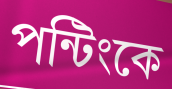
পন্টিংকে